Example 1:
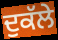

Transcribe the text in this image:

ਦੁਕੱਲੇ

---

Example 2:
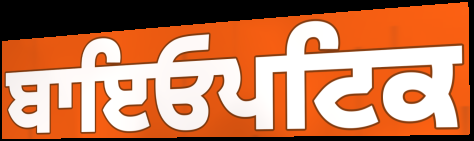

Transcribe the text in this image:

ਬਾਇਓਪਟਿਕ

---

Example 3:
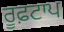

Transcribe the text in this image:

ਰੂਫ਼ਟਾਪ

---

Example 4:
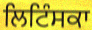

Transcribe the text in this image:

ਲਿਟਿੰਸਕਾ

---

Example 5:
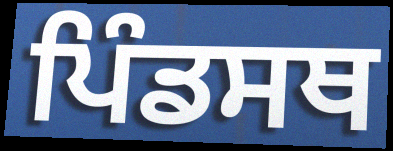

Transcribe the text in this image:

ਪਿੰਡਸਥ